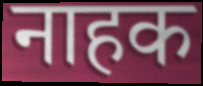
नाहक